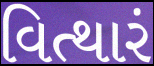
વિત્થારં